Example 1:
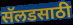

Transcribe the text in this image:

सॅलडसाठी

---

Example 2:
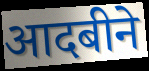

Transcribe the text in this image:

आदबीने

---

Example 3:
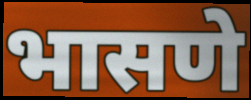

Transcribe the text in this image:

भासणे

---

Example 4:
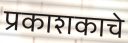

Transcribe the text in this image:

प्रकाशकाचे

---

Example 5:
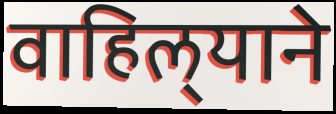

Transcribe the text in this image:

वाहिल्याने